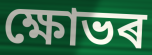
ক্ষোভৰ